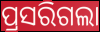
ପ୍ରସରିଗଲା